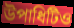
উপাধিটিও